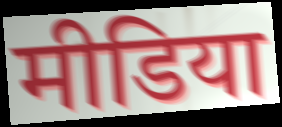
मीडिया